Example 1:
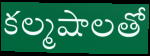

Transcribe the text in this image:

కల్మషాలతో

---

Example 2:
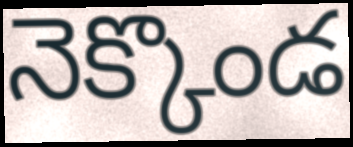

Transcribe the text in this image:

నెక్కొండ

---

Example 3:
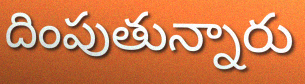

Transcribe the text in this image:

దింపుతున్నారు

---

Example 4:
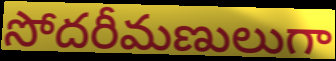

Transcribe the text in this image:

సోదరీమణులుగా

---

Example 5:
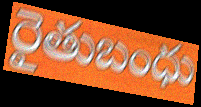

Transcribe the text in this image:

రైతుబంధు